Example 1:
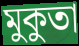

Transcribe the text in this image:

মুকুতা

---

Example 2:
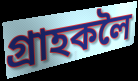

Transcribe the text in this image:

গ্ৰাহকলৈ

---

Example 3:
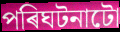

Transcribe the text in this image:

পৰিঘটনাটো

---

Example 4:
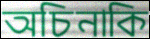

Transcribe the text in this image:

অচিনাকি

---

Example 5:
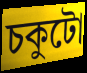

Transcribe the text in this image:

চকুটো